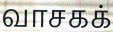
வாசகக்